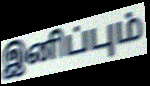
இனிப்பும்